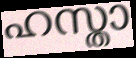
ഹസ്താ